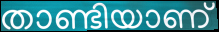
താണ്ടിയാണ്